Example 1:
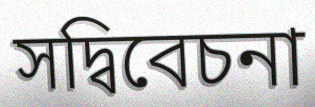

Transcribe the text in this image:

সদ্বিবেচনা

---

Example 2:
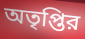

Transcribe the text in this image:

অতৃপ্তির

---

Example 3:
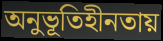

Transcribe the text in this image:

অনুভূতিহীনতায়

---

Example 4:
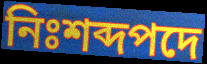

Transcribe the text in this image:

নিঃশব্দপদে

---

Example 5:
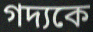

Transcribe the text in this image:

গদ্যকে